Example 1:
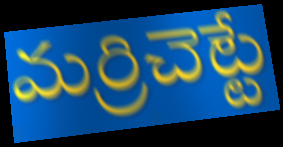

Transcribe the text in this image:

మర్రిచెట్టే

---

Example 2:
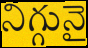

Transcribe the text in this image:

నిగ్గునై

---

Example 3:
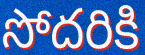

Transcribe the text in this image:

సోదరికి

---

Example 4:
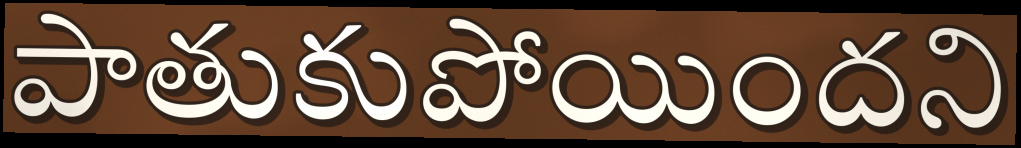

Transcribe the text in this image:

పాతుకుపోయిందని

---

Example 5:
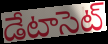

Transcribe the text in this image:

డేటాసెట్